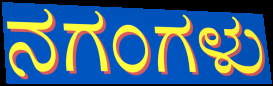
ನಗಂಗಳು